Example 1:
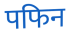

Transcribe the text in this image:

पफिन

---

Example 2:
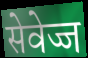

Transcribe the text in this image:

सेवेज्ज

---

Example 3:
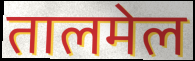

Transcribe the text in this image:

तालमेल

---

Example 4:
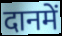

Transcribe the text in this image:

दानमें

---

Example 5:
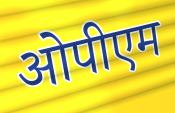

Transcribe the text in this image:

ओपीएम